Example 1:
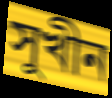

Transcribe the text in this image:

সুখীন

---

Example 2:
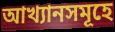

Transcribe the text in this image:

আখ্যানসমূহে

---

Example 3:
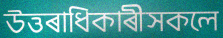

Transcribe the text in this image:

উত্তৰাধিকাৰীসকলে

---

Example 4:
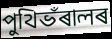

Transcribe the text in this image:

পুথিভঁৰালৰ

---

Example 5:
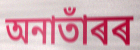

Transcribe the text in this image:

অনাতাঁৰৰ